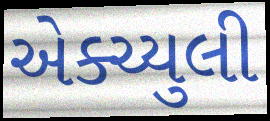
એક્ચ્યુલી